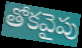
తోకవైపు